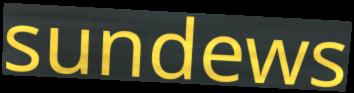
sundews